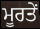
ਮੂਰਤੇਂ